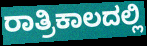
ರಾತ್ರಿಕಾಲದಲ್ಲಿ